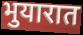
भुयारात